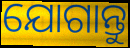
ଯୋଗାନ୍ତୁ